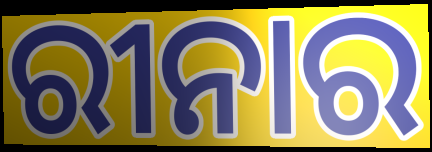
ରୀନାର